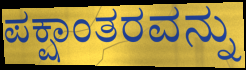
ಪಕ್ಷಾಂತರವನ್ನು